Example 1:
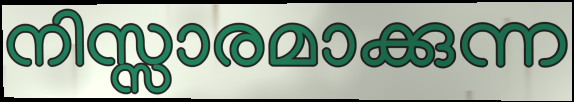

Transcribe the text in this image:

നിസ്സാരമാക്കുന്ന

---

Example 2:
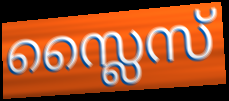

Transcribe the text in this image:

സ്ലൈസ്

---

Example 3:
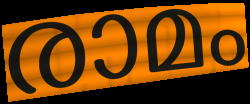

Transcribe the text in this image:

രാമം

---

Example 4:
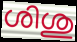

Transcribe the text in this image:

ശിശു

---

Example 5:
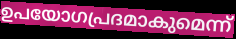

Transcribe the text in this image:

ഉപയോഗപ്രദമാകുമെന്ന്